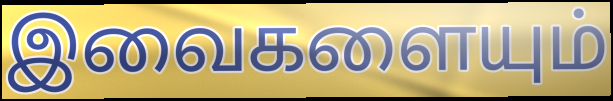
இவைகளையும்